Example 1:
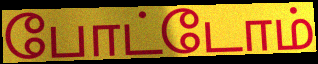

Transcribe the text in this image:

போட்டோம்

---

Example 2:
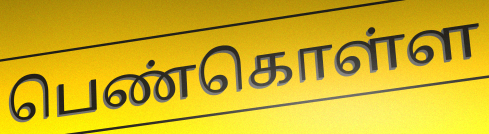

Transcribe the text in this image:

பெண்கொள்ள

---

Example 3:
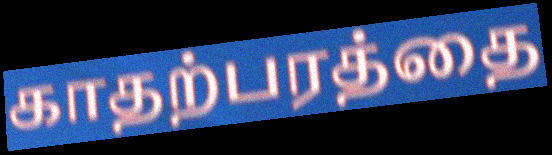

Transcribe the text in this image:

காதற்பரத்தை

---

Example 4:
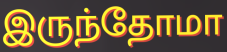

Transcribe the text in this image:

இருந்தோமா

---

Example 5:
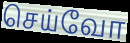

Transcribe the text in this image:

செய்வோ